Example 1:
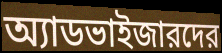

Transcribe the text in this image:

অ্যাডভাইজারদের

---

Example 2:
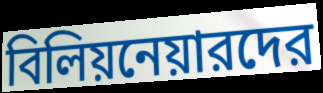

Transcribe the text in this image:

বিলিয়নেয়ারদের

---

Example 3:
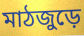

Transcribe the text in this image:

মাঠজুড়ে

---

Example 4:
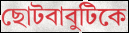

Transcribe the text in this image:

ছোটবাবুটিকে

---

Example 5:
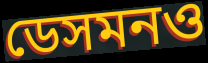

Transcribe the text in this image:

ডেসমনও